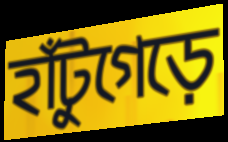
হাঁটুগেড়ে